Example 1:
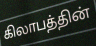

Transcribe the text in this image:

கிலாபத்தின்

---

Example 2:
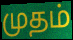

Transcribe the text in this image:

முதம்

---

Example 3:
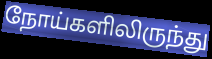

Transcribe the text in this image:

நோய்களிலிருந்து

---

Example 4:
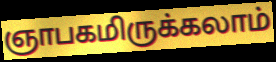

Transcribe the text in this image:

ஞாபகமிருக்கலாம்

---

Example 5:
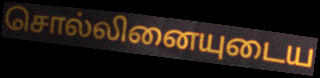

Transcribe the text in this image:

சொல்லினையுடைய